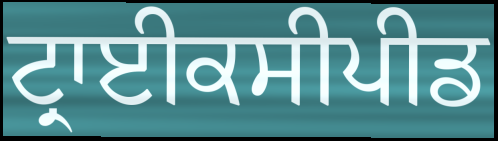
ਟ੍ਰਾਈਕਸੀਪੀਡ